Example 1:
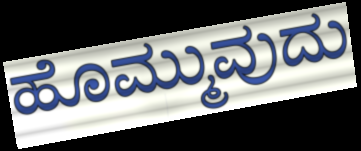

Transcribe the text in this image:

ಹೊಮ್ಮುವುದು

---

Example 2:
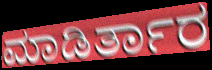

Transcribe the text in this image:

ಮಾಡಿರ್ತಾರ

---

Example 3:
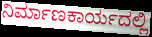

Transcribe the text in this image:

ನಿರ್ಮಾಣಕಾರ್ಯದಲ್ಲಿ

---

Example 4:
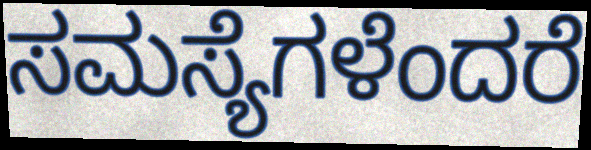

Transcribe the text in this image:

ಸಮಸ್ಯೆಗಳೆಂದರೆ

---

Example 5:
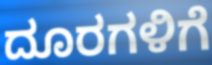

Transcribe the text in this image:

ದೂರಗಳಿಗೆ